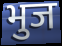
भुज